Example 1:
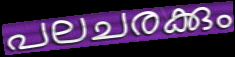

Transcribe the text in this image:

പലചരക്കും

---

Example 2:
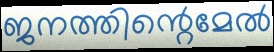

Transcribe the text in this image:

ജനത്തിന്റെമേൽ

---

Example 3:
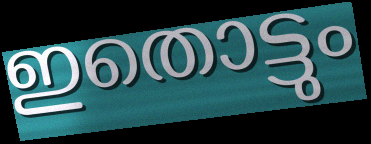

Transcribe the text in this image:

ഇതൊട്ടും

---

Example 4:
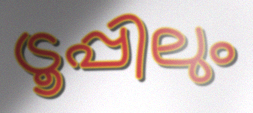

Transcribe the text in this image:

ട്രൂപ്പിലും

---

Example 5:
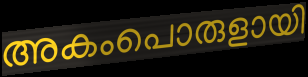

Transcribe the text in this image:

അകംപൊരുളായി